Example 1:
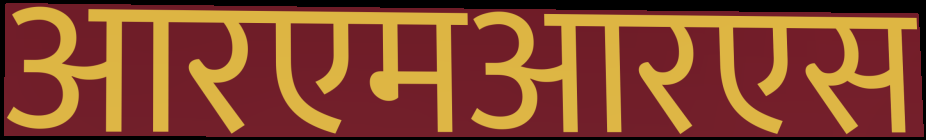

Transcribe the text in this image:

आरएमआरएस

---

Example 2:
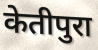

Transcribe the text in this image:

केतीपुरा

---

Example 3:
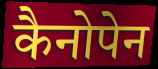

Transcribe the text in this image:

कैनोपेन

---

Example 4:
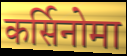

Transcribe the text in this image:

कर्सिनोमा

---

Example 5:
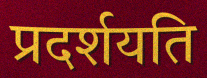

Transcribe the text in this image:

प्रदर्शयति